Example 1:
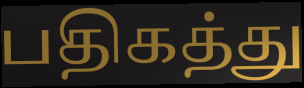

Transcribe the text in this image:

பதிகத்து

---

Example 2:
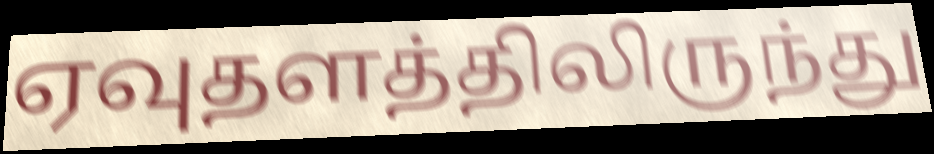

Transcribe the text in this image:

ஏவுதளத்திலிருந்து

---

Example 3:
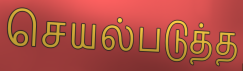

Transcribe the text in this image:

செயல்படுத்த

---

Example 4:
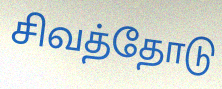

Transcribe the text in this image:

சிவத்தோடு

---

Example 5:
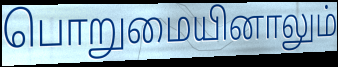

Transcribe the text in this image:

பொறுமையினாலும்